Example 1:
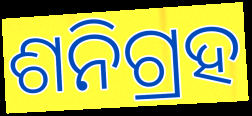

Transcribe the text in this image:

ଶନିଗ୍ରହ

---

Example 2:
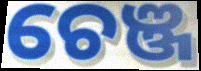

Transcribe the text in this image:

ଚେଞ୍ଜ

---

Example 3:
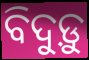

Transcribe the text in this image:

ବିଦୁଡ଼ୁ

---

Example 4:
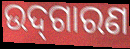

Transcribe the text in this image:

ଉଦ୍‌ଗାରଣ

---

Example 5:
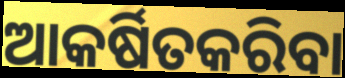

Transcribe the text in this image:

ଆକର୍ଷିତକରିବା